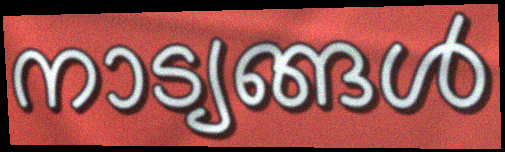
നാട്യങ്ങൾ